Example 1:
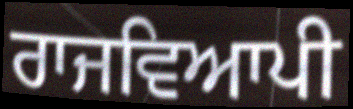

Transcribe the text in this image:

ਰਾਜਵਿਆਪੀ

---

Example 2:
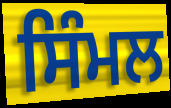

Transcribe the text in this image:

ਸਿੰਮਲ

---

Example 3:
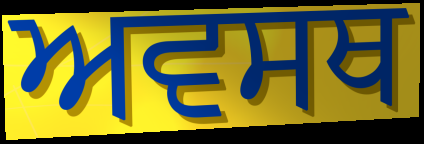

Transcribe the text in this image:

ਅਵਸਥ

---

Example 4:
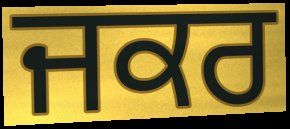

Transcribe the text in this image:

ਜਕਰ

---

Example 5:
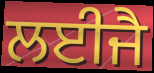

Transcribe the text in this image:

ਲਈਜੈ